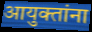
आयुक्‍तांना